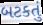
બટકતું